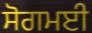
ਸੋਗਮਈ